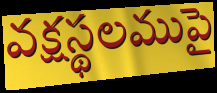
వక్షస్థలముపై